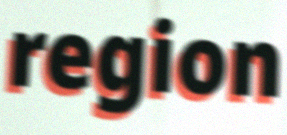
region